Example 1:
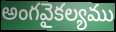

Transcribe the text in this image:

అంగవైకల్యము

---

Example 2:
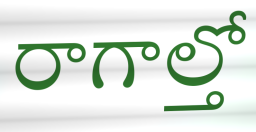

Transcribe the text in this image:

రాగాల్తో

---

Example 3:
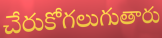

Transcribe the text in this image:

చేరుకోగలుగుతారు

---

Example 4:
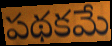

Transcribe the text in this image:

పథకమే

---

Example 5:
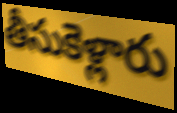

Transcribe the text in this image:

తీసుకెళ్లారు